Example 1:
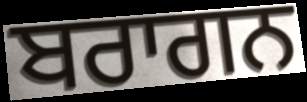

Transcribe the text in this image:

ਬਰਾਗਨ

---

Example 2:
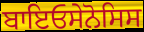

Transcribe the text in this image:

ਬਾਇਓਸੇਨੋਸਿਸ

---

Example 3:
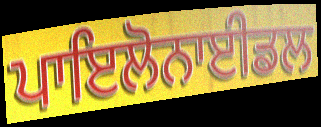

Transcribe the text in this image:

ਪਾਇਲੋਨਾਈਡਲ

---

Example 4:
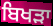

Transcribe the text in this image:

ਬਿਖੜਾ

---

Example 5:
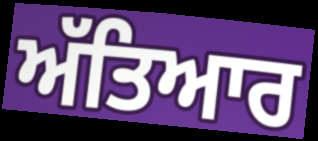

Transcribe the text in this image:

ਅੱਤਿਆਰ